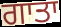
ਗਾਤਾ